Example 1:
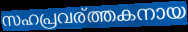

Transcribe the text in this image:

സഹപ്രവര്ത്തകനായ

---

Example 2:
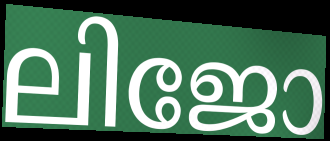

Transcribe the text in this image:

ലിജോ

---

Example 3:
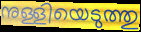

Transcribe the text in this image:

നുള്ളിയെടുത്തു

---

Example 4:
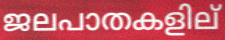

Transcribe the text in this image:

ജലപാതകളില്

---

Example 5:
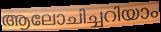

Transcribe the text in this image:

ആലോചിച്ചറിയാം